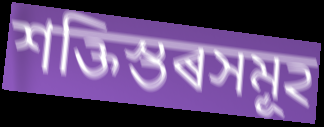
শক্তিস্তৰসমূহ